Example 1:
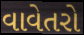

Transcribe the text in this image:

વાવેતરો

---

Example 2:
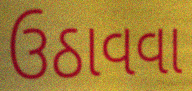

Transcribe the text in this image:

ઉઠાવવા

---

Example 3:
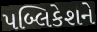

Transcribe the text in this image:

પબ્લિકેશને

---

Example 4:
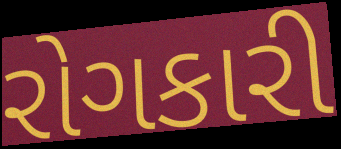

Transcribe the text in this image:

રોગકારી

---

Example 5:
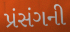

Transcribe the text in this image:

પ્રંસંગની